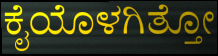
ಕೈಯೊಳಗಿತ್ತೋ